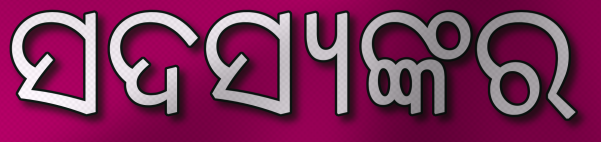
ସଦସ୍ୟଙ୍କର